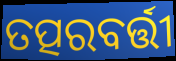
ତତ୍ପରବର୍ତ୍ତୀ